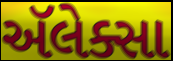
ઍલેક્સા